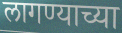
लागण्याच्या